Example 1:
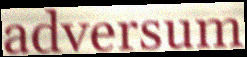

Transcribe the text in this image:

adversum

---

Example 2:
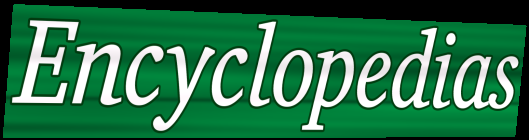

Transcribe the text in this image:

Encyclopedias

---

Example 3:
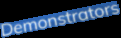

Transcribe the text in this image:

Demonstrators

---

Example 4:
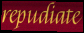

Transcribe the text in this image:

repudiate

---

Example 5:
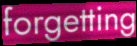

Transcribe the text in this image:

forgetting